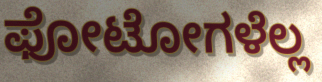
ಫೋಟೋಗಳೆಲ್ಲ